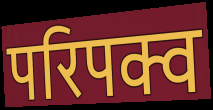
परिपक्व